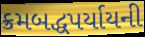
ક્રમબદ્ધપર્યાયની